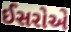
ઈસરોએ